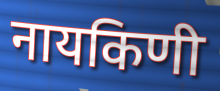
नायकिणी